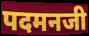
पदमनजी